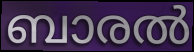
ബാരൽ